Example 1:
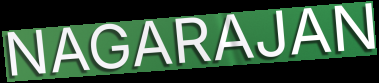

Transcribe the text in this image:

NAGARAJAN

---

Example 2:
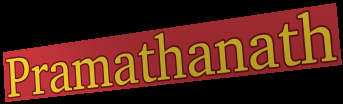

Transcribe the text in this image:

Pramathanath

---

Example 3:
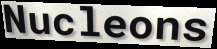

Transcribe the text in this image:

Nucleons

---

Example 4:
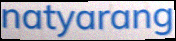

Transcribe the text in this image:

natyarang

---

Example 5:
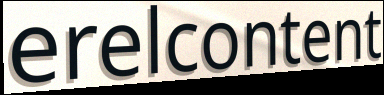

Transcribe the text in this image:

erelcontent